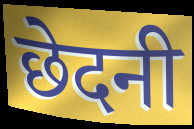
छेदनी